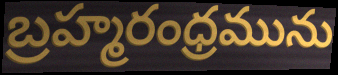
బ్రహ్మరంధ్రమును